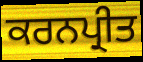
ਕਰਨਪ੍ਰੀਤ